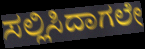
ಸಲ್ಲಿಸಿದಾಗಲೇ